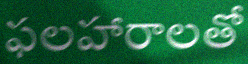
ఫలహారాలతో